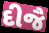
દીજૈ